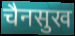
चैनसुख